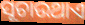
ସୂଚାଉଥାଏ